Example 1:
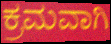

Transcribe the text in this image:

ಕ್ರಮವಾಗಿ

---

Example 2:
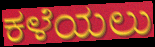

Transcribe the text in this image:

ಕಳೆಯಲು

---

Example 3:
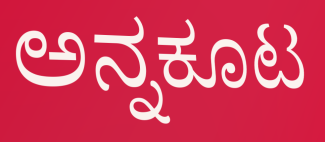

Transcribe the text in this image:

ಅನ್ನಕೂಟ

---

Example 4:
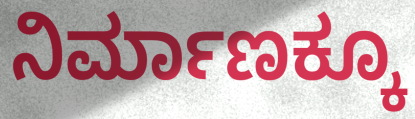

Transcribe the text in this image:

ನಿರ್ಮಾಣಕ್ಕೂ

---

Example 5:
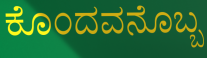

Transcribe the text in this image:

ಕೊಂದವನೊಬ್ಬ